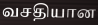
வசதியான